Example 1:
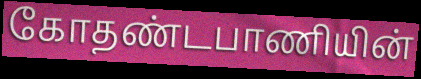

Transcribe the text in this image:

கோதண்டபாணியின்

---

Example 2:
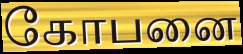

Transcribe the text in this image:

கோபனை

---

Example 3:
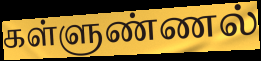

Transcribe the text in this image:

கள்ளுண்ணல்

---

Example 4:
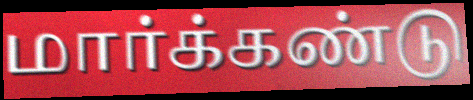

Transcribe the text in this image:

மார்க்கண்டு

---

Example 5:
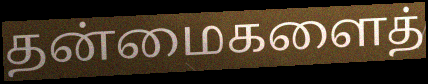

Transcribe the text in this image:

தன்மைகளைத்